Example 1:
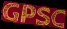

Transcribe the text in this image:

GPSC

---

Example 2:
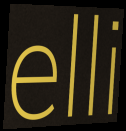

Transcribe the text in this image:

elli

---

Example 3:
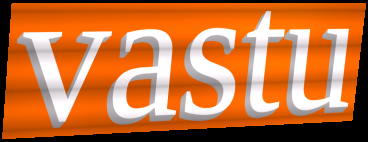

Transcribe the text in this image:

vastu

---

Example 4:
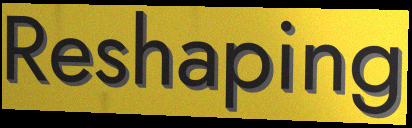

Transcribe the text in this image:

Reshaping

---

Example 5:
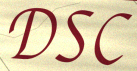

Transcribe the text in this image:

DSC